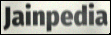
Jainpedia